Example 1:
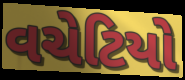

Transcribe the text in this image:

વચેટિયો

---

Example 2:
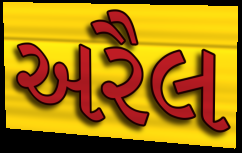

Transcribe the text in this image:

અરૈલ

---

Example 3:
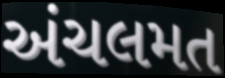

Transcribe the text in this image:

અંચલમત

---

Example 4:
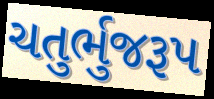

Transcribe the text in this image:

ચતુર્ભુજરૂપ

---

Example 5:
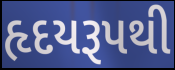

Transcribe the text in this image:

હૃદયરૂપથી